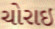
ચોરાઇ